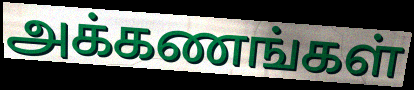
அக்கணங்கள்